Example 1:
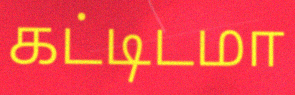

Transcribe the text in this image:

கட்டிடமா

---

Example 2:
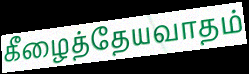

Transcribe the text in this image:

கீழைத்தேயவாதம்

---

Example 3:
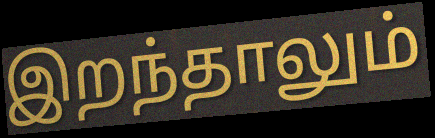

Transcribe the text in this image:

இறந்தாலும்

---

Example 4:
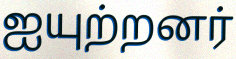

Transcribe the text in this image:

ஐயுற்றனர்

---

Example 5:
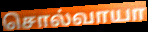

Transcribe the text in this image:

சொல்வாயா